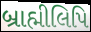
બ્રાહ્મીલિપિ